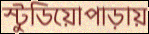
স্টুডিয়োপাড়ায়